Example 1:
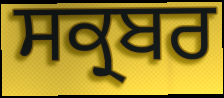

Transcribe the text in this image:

ਸਕ੍ਰਬਰ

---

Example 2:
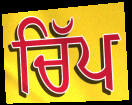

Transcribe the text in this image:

ਚਿੱਪ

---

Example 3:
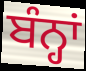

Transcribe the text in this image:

ਬੰਨ੍ਹਾਂ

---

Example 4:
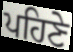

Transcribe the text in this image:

ਪਹਿਣੇ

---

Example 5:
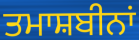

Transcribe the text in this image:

ਤਮਾਸ਼ਬੀਨਾਂ